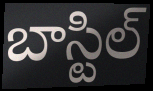
బాస్టిల్